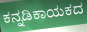
ಕನ್ನಡಿಕಾಯಕದ